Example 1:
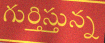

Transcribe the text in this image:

గుర్తిస్తున్న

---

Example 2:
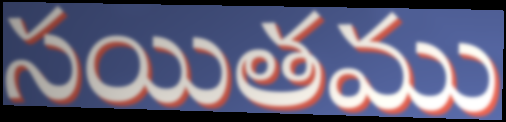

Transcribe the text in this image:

సయితము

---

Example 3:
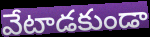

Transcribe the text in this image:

వేటాడకుండా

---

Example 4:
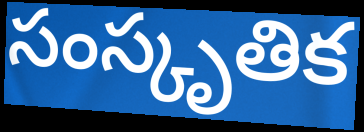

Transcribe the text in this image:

సంస్కృతిక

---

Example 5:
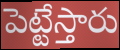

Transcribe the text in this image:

పెట్టేస్తారు